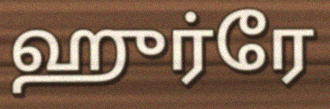
ஹுர்ரே